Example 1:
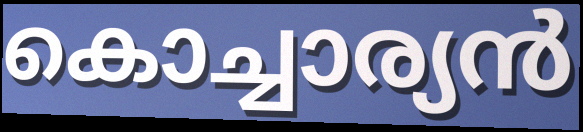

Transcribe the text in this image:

കൊച്ചാര്യൻ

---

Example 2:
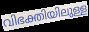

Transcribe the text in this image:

വിഭക്തിയിലുള്ള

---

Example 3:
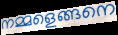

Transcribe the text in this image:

നമ്മളെങ്ങനെ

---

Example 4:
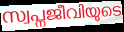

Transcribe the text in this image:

സ്വപ്നജീവിയുടെ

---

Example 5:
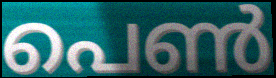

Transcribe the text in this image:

പെൺ